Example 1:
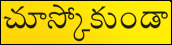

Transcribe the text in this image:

చూస్కోకుండా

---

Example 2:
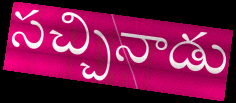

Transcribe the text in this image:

సచ్చినాడు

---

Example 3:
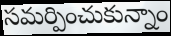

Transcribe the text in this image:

సమర్పించుకున్నాం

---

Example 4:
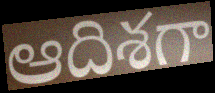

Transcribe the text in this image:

ఆదిశగా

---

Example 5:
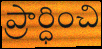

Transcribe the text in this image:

ప్రార్ధించి